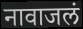
नावाजलं